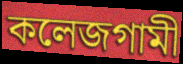
কলেজগামী